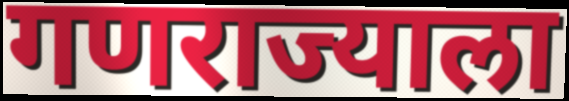
गणराज्याला